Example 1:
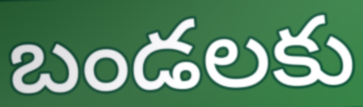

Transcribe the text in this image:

బండలకు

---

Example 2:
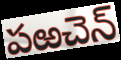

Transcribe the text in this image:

పఱచెన్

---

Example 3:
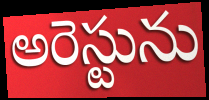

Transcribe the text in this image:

అరెస్టును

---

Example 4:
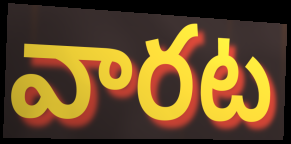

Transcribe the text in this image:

వారట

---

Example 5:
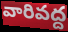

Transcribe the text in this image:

వారివద్ద